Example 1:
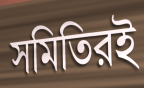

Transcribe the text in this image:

সমিতিরই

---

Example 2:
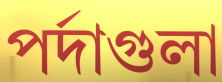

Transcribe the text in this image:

পর্দাগুলা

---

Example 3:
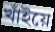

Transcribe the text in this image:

খাঁইয়ে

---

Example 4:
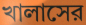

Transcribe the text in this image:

খালাসের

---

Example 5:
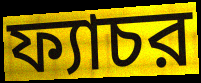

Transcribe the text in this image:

ফ্যাচর